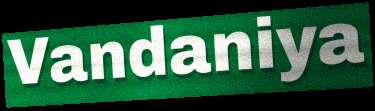
Vandaniya